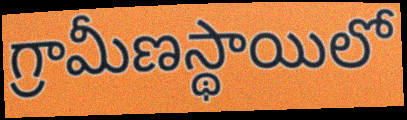
గ్రామీణస్థాయిలో